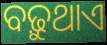
ବଢ଼ୁଥାଏ